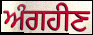
ਅੰਗਹੀਣ